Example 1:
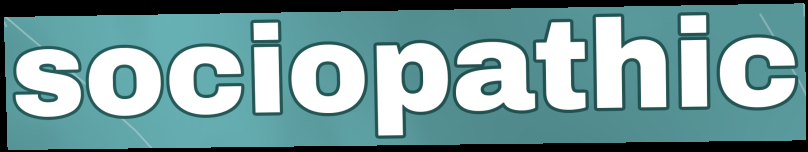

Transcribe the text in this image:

sociopathic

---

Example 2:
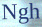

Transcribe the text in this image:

Ngh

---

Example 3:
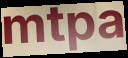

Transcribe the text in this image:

mtpa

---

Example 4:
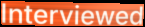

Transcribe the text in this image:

Interviewed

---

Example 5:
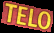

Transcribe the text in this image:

TELO